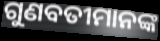
ଗୁଣବତୀମାନଙ୍କ